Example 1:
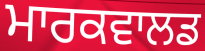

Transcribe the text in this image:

ਮਾਰਕਵਾਲਡ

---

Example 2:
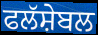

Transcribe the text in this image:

ਫਲੱਸ਼ੇਬਲ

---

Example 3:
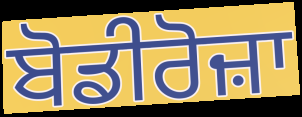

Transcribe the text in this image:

ਬੋਡੀਰੋਜ਼ਾ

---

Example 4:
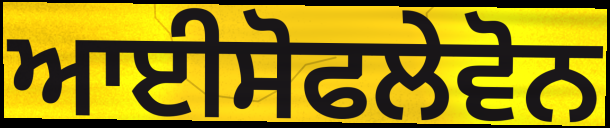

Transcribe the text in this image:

ਆਈਸੋਫਲੇਵੋਨ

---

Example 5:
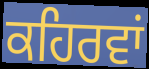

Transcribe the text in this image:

ਕਹਿਰਵਾਂ